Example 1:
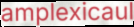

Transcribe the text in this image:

amplexicaul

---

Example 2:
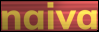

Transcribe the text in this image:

naiva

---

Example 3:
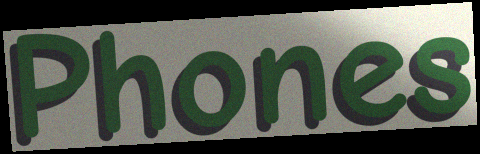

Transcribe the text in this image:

Phones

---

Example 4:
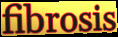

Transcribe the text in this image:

fibrosis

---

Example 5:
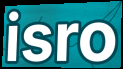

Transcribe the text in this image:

isro